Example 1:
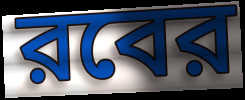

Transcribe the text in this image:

রবের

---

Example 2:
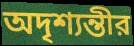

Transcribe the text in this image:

অদৃশ্যন্তীর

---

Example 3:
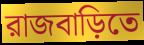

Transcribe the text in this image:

রাজবাড়িতে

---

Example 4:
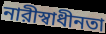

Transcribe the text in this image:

নারীস্বাধীনতা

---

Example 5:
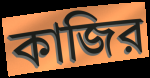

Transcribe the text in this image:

কাজির